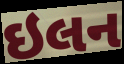
ઇલન